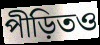
পীড়িতও